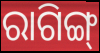
ରାଗିଙ୍ଗ୍